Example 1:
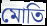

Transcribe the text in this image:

মোতি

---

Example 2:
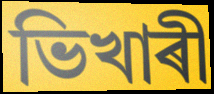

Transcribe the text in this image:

ভিখাৰী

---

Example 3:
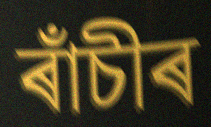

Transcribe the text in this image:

ৰাঁচীৰ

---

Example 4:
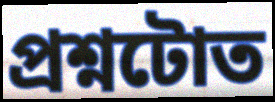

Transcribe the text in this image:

প্ৰশ্নটোত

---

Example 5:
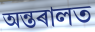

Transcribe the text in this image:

অন্তৰালত